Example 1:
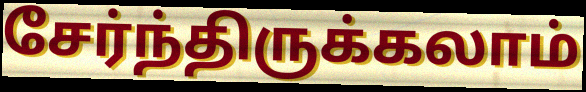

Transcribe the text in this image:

சேர்ந்திருக்கலாம்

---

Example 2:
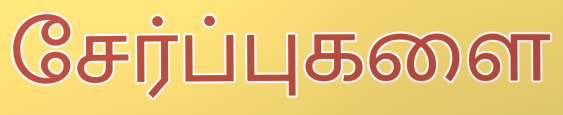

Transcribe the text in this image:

சேர்ப்புகளை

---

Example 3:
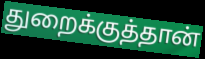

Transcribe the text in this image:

துறைக்குத்தான்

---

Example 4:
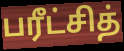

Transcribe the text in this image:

பரீட்சித்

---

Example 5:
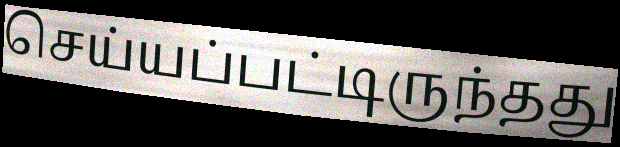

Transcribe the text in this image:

செய்யப்பட்டிருந்தது